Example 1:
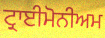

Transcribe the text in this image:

ਟ੍ਰਾਈਮੋਨੀਅਮ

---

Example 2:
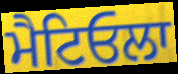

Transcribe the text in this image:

ਮੈਟਿਓਲਾ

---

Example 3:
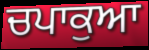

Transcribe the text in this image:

ਚਪਾਕੁਆ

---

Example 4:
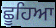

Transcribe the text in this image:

ਛੂਹਿਆ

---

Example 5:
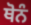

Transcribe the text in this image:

ਥੋਨੰ